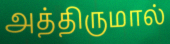
அத்திருமால்